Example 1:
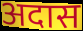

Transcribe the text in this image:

अदास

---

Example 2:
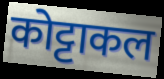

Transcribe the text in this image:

कोट्टाकल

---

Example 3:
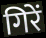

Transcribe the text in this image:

गिरें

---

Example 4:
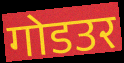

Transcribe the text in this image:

गोडउर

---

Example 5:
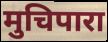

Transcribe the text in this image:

मुचिपारा